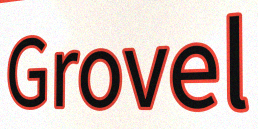
Grovel